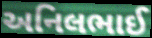
અનિલભાઈ